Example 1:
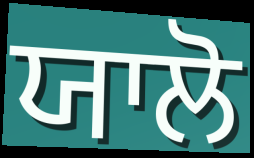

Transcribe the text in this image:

ਯਾਲੋ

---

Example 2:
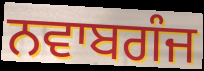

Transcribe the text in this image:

ਨਵਾਬਗੰਜ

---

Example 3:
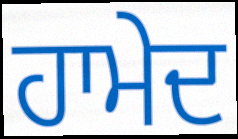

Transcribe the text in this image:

ਹਾਮੇਦ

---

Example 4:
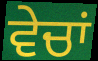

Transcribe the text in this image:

ਵੇਚਾਂ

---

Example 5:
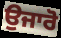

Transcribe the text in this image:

ਉਜਾਰੋ